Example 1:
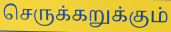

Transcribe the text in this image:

செருக்கறுக்கும்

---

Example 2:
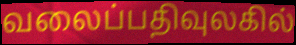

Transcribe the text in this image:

வலைப்பதிவுலகில்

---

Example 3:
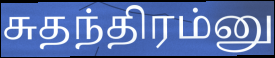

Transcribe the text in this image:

சுதந்திரம்னு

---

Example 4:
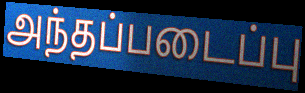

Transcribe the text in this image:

அந்தப்படைப்பு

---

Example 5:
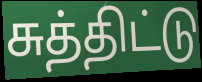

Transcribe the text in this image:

சுத்திட்டு